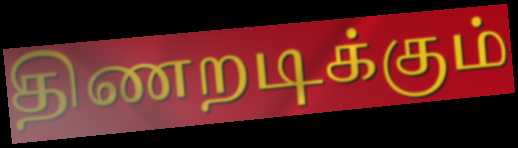
திணறடிக்கும்